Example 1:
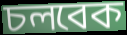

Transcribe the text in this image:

চলবেক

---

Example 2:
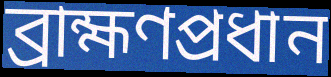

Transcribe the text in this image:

ব্রাহ্মণপ্রধান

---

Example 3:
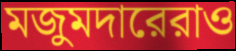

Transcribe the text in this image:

মজুমদারেরাও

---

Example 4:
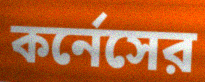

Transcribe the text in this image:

কর্নেসের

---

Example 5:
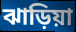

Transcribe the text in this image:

ঝাড়িয়া